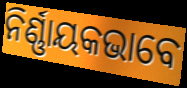
ନିର୍ଣ୍ଣାୟକଭାବେ